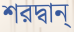
শরদ্বান্